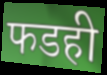
फडही